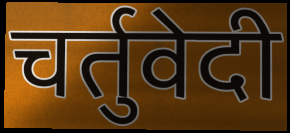
चर्तुवेदी